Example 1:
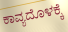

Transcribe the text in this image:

ಕಾವ್ಯದೊಳಕ್ಕೆ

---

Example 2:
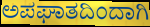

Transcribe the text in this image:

ಅಪಘಾತದಿಂದಾಗಿ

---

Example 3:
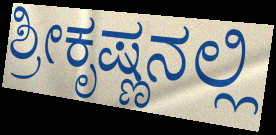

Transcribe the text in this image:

ಶ್ರೀಕೃಷ್ಣನಲ್ಲಿ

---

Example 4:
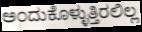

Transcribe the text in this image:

ಅಂದುಕೊಳ್ಳುತ್ತಿರಲಿಲ್ಲ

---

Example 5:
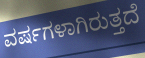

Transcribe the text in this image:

ವರ್ಷಗಳಾಗಿರುತ್ತದೆ